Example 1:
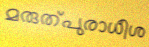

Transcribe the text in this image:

മരുത്പുരാധീശ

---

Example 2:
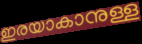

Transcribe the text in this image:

ഇരയാകാനുള്ള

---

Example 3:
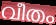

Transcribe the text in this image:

വീതം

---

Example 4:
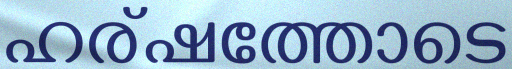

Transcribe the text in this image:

ഹര്ഷത്തോടെ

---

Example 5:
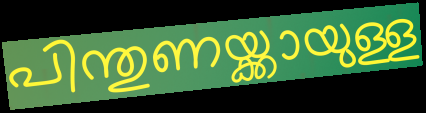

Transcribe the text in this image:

പിന്തുണയ്ക്കായുള്ള